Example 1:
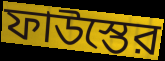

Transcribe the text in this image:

ফাউস্তের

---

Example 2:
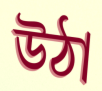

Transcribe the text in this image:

উঠা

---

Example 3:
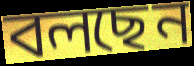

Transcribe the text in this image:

বলছেন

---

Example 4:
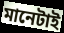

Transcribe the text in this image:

মানেটাই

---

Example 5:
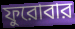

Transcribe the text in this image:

ফুরোবার